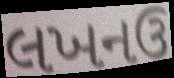
લખનઉ